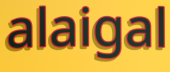
alaigal